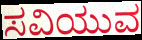
ಸವಿಯುವ